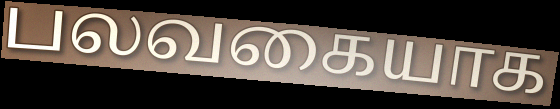
பலவகையாக